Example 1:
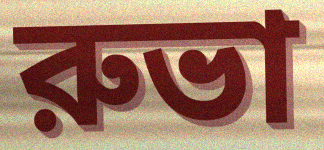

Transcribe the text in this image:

রুভা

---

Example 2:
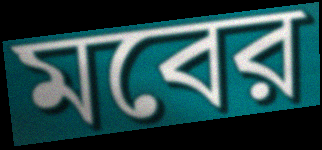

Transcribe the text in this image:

মবের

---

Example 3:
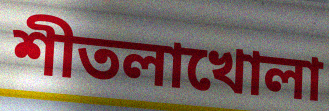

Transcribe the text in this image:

শীতলাখোলা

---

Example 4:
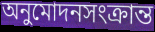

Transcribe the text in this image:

অনুমোদনসংক্রান্ত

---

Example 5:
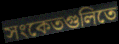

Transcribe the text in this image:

সংকেতগুলিতে